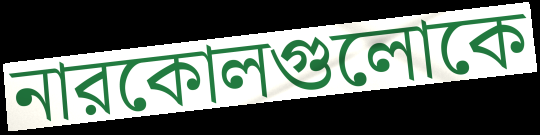
নারকোলগুলোকে